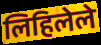
लिहिलेले